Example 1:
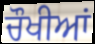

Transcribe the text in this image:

ਚੌਖੀਆਂ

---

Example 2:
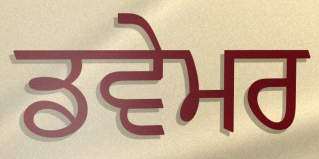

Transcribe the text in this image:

ਡਵੇਮਰ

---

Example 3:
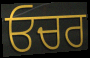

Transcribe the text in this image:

ਓਚਰ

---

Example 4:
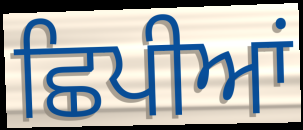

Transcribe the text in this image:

ਛਿਪੀਆਂ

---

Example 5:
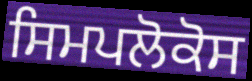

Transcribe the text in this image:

ਸਿਮਪਲੋਕੋਸ